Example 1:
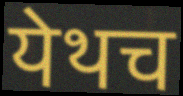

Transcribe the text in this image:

येथच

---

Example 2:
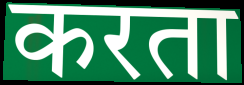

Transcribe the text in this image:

करता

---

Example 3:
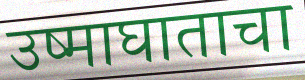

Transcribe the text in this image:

उष्माघाताचा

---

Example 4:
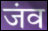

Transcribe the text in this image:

जंव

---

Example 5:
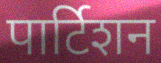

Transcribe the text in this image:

पार्टिशन